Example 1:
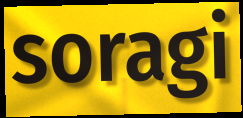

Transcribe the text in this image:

soragi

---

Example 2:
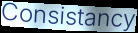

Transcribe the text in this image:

Consistancy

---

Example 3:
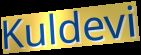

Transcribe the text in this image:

Kuldevi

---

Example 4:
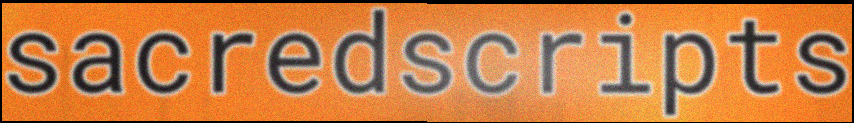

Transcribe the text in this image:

sacredscripts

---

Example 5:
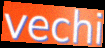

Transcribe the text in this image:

vechi